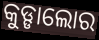
କୁଡ୍ଡାଲୋର